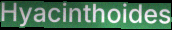
Hyacinthoides